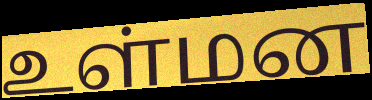
உள்மன